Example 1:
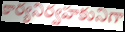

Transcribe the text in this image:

కార్యనిర్వహకునిగా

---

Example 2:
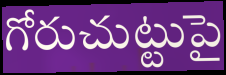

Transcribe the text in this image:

గోరుచుట్టుపై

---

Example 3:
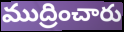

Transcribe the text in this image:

ముద్రించారు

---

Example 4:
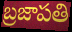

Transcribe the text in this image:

బ్రజాపతి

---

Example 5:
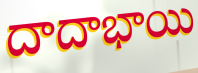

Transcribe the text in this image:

దాదాభాయి